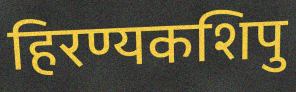
हिरण्यकशिपु